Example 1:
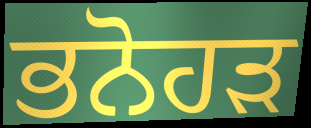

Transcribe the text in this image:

ਭਨੋਹੜ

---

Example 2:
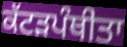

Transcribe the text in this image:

ਕੱਟੜਪੰਥੀਤਾ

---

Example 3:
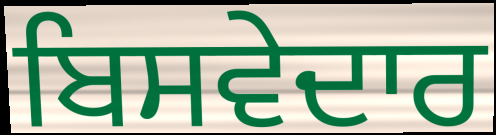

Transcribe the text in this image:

ਬਿਸਵੇਦਾਰ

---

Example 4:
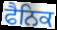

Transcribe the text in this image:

ਫੈਨਿਕ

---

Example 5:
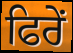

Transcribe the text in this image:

ਫਿਰੇਂ